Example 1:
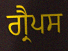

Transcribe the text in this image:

ਗ੍ਰੈਪਸ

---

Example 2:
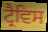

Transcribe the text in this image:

ਟ੍ਰੈਵਿਸ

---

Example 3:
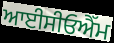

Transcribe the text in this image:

ਆਈਸੀਓਐੱਮ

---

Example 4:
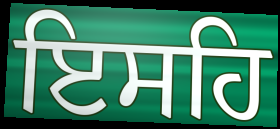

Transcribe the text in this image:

ਇਸਹਿ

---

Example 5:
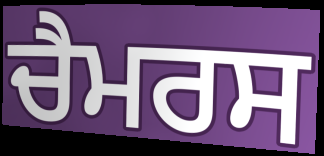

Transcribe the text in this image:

ਚੈਮਰਸ